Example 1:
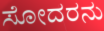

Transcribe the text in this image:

ಸೋದರನು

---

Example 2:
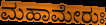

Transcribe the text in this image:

ಮಹಾಮೇರುಃ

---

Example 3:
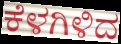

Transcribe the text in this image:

ಕೆಳಗಿಳಿದ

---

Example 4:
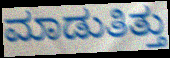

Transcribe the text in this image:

ಮಾಡುತಿತ್ತು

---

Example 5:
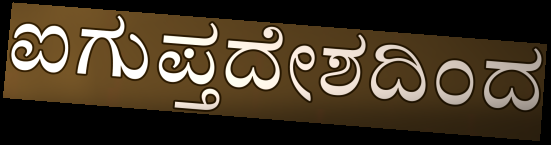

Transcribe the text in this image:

ಐಗುಪ್ತದೇಶದಿಂದ